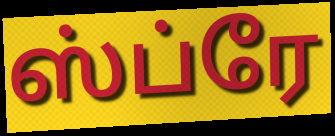
ஸ்ப்ரே